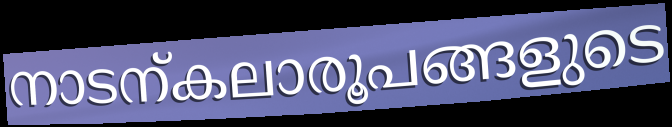
നാടന്കലാരൂപങ്ങളുടെ